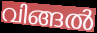
വിങ്ങൽ